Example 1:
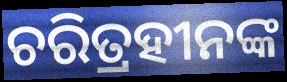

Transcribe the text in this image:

ଚରିତ୍ରହୀନଙ୍କ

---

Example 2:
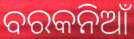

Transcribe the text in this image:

ବରକନିଆଁ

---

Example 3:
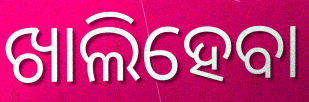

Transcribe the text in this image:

ଖାଲିହେବା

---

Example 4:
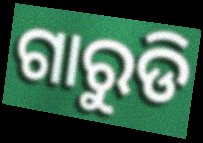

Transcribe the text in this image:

ଗାରୁଡି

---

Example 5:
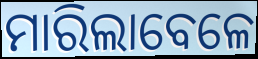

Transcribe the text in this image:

ମାରିଲାବେଳେ